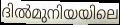
ദിൽമുനിയയിലെ